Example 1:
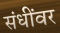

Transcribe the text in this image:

संधींवर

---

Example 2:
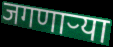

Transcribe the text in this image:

जगणाऱ्या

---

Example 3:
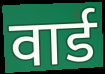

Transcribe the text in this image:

वार्ड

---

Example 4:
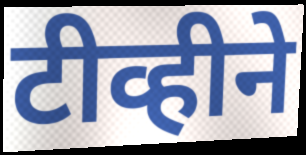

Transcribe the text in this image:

टीव्हीने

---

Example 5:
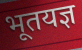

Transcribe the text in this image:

भूतयज्ञ